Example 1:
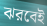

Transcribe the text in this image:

ঝরবেই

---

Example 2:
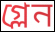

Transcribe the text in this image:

গ্লেন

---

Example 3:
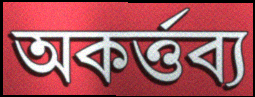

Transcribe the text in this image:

অকর্ত্তব্য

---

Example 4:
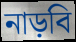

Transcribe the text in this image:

নাড়বি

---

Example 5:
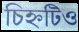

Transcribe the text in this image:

চিহ্নটিও